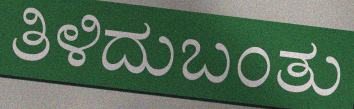
ತಿಳಿದುಬಂತು